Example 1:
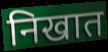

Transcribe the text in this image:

निखात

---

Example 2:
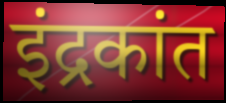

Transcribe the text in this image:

इंद्रकांत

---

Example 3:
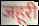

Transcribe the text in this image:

जहूरी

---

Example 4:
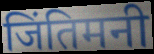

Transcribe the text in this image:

जिंतिमनी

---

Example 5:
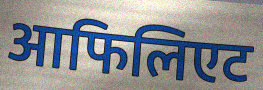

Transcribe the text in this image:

आफिलिएट